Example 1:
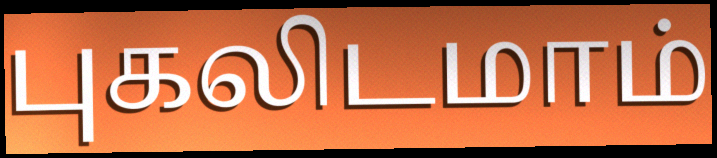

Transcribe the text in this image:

புகலிடமாம்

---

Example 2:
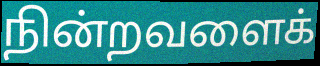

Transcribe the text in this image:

நின்றவளைக்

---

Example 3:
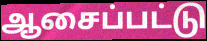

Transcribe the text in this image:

ஆசைப்பட்டு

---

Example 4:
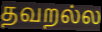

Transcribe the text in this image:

தவறல்ல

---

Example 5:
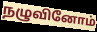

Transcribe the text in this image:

நழுவினோம்